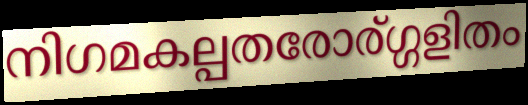
നിഗമകല്പതരോര്ഗ്ഗളിതം